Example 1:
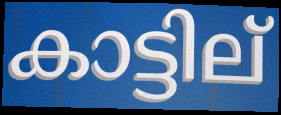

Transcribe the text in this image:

കാട്ടില്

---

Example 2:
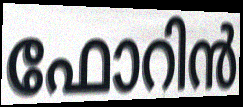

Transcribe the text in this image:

ഫോറിൻ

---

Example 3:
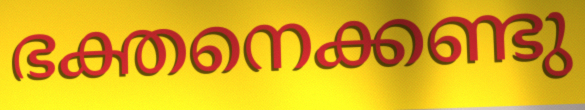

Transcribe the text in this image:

ഭക്തനെക്കണ്ടു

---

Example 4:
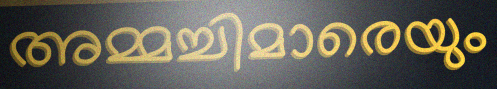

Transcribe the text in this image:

അമ്മച്ചിമാരെയും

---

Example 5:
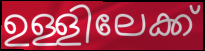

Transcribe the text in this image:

ഉള്ളിലേക്ക്